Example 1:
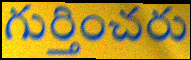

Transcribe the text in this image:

గుర్తించరు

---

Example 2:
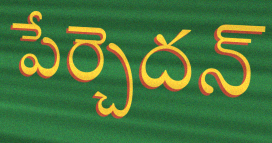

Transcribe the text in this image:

పేర్చెదన్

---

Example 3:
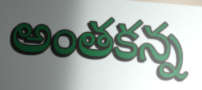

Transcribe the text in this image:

అంతకన్న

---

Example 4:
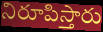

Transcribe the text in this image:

నిరూపిస్తారు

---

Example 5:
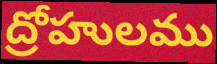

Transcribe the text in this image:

ద్రోహులము